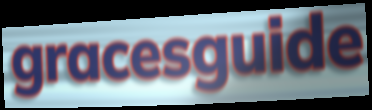
gracesguide